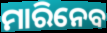
ମାରିନେବ